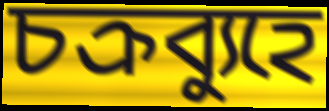
চক্রব্যুহে